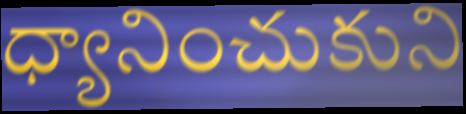
ధ్యానించుకుని